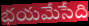
భయమేసేది